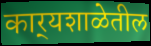
कार्यशाळेतील